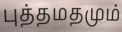
புத்தமதமும்